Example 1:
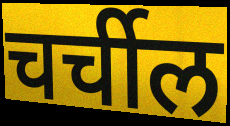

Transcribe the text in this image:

चर्चील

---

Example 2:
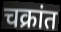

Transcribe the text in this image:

चक्रांत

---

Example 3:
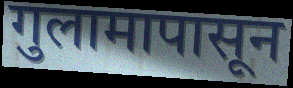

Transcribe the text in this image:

गुलामापासून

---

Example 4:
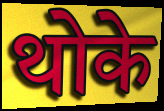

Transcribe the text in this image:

थोके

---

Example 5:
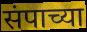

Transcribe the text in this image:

संपाच्या